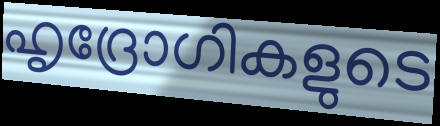
ഹൃദ്രോഗികളുടെ